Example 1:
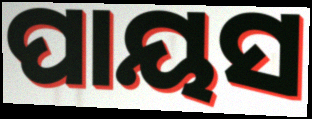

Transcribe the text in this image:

ପାୟସ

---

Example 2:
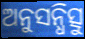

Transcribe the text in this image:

ଅନୁସନ୍ଧିତ୍ସୁ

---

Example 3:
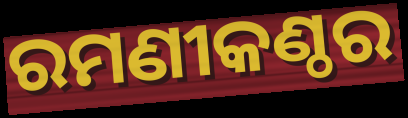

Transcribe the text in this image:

ରମଣୀକଣ୍ଠର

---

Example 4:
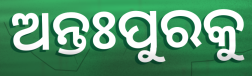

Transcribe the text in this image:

ଅନ୍ତଃପୁରକୁ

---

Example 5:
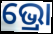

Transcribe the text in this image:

ଭ୍ରୋ